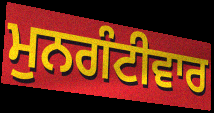
ਮੁਨਗੰਟੀਵਾਰ